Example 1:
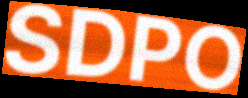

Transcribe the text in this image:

SDPO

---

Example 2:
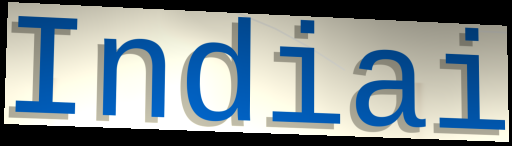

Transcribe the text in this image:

Indiai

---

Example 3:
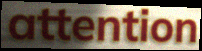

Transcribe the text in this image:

attention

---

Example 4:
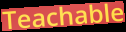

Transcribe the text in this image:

Teachable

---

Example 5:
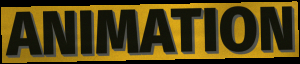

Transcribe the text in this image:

ANIMATION